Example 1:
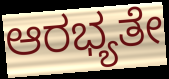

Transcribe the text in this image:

ಆರಭ್ಯತೇ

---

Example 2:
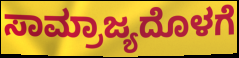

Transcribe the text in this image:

ಸಾಮ್ರಾಜ್ಯದೊಳಗೆ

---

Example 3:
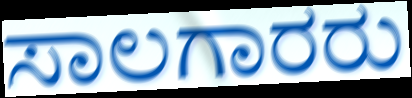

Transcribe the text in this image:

ಸಾಲಗಾರರು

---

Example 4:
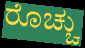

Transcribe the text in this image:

ರೊಚ್ಚು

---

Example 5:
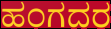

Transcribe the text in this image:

ಹಂಗದರ